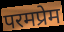
परमप्रेम